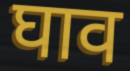
घाव